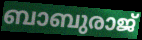
ബാബുരാജ്